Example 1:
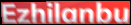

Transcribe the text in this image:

Ezhilanbu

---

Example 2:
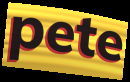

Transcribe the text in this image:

pete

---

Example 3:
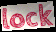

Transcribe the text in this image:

lock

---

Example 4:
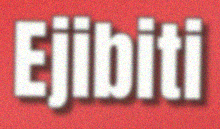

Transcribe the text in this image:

Ejibiti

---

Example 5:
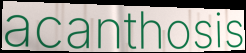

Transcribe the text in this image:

acanthosis